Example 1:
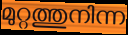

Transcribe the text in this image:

മുറ്റത്തുനിന്ന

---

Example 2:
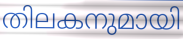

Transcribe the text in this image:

തിലകനുമായി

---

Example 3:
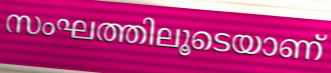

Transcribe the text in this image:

സംഘത്തിലൂടെയാണ്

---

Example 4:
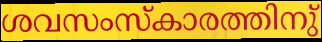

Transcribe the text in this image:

ശവസംസ്കാരത്തിനു്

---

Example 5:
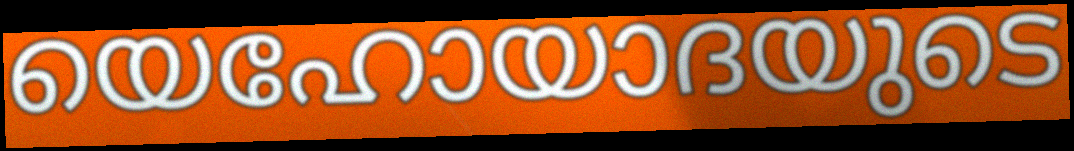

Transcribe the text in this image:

യെഹോയാദയുടെ